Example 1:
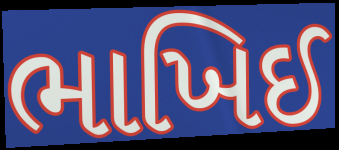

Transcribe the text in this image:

ભાખિઈ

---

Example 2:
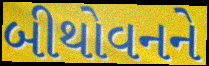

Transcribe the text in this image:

બીથોવનને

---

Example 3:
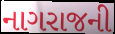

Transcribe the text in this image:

નાગરાજની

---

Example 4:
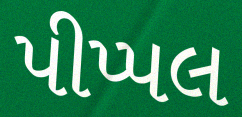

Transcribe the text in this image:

પીપ્પલ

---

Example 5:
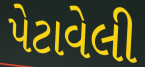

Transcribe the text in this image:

પેટાવેલી